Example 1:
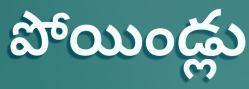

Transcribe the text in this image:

పోయిండ్లు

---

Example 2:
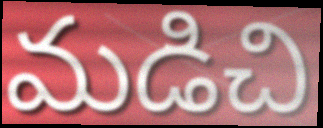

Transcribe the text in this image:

మడిచి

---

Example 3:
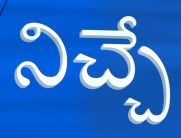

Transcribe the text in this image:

నిచ్చే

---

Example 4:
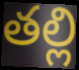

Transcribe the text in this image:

తల్లి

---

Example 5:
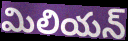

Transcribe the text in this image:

మిలియన్